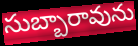
సుబ్బారావును